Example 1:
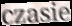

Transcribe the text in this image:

czasie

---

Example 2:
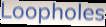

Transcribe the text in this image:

Loopholes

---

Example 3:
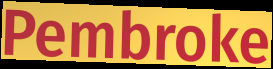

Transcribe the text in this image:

Pembroke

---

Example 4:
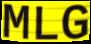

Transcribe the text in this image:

MLG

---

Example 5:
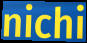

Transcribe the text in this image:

nichi